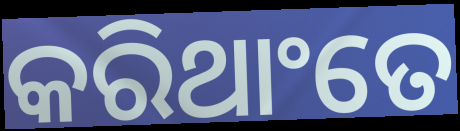
କରିଥାଂତେ